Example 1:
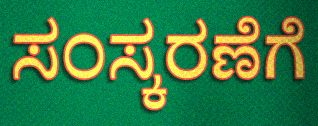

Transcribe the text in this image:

ಸಂಸ್ಕರಣೆಗೆ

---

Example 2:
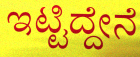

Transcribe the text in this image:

ಇಟ್ಟಿದ್ದೇನೆ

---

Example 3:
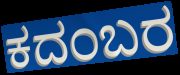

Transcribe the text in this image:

ಕದಂಬರ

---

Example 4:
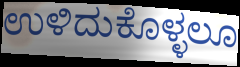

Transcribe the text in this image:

ಉಳಿದುಕೊಳ್ಳಲೂ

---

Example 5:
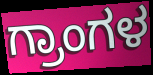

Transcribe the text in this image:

ಗ್ರಾಂಗಳ